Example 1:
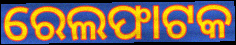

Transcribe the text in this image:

ରେଲଫାଟକ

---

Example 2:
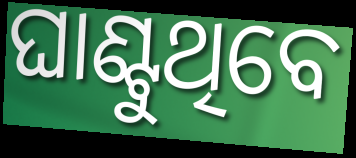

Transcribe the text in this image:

ଘାଣ୍ଟୁଥିବେ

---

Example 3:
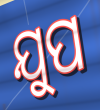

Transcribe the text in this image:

ଯୁପ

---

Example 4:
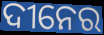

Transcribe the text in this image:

ଦୀନେର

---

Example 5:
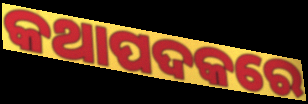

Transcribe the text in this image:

କଥାପଦକରେ